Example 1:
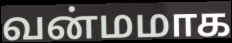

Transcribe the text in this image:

வன்மமாக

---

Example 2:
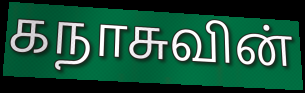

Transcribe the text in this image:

கநாசுவின்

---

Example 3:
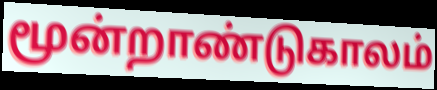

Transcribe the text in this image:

மூன்றாண்டுகாலம்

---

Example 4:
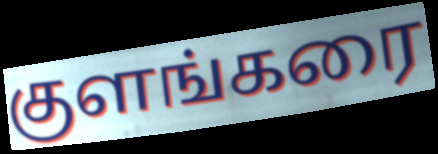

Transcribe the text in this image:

குளங்கரை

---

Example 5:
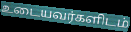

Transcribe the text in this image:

உடையவர்களிடம்